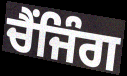
ਚੈਂਜਿੰਗ